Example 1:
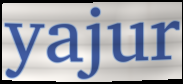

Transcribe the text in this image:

yajur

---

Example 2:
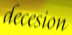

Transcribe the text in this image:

decesion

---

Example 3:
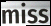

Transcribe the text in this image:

miss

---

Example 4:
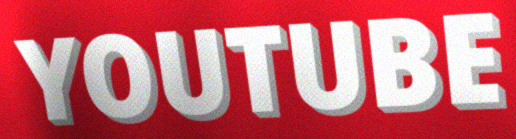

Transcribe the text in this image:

YOUTUBE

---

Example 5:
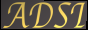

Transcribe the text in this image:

ADSI